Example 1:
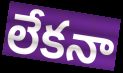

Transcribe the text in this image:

లేకనా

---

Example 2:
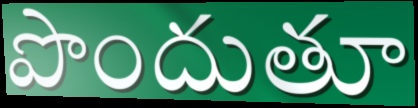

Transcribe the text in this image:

పొందుతూ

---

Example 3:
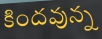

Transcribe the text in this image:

కిందవున్న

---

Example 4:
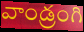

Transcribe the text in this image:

వాండ్రంగి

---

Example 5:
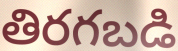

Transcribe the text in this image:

తిరగబడి